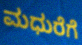
ಮಧುರೆಗೆ